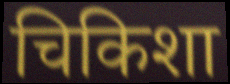
चिकिशा